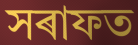
সৰাফত